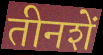
तीनशें